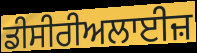
ਡੀਸੀਰੀਅਲਾਈਜ਼